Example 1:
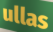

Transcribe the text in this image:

ullas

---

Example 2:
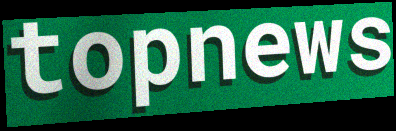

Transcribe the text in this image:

topnews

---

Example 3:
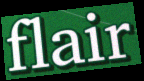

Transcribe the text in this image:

flair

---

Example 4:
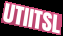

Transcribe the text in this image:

UTIITSL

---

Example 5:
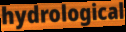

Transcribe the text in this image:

hydrological